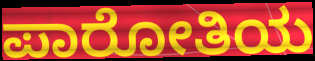
ಪಾರೋತಿಯ